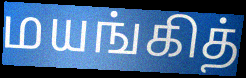
மயங்கித்